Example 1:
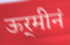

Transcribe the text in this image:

ऊर्मीनं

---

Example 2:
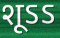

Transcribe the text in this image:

शूऽऽ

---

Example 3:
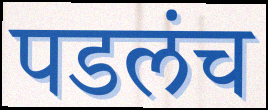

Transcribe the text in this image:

पडलंच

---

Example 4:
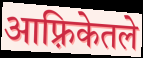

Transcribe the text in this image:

आफ़्रिकेतले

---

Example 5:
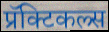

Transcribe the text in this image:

प्रॅक्टिकल्स